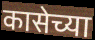
कासेच्या